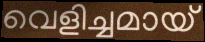
വെളിച്ചമായ്